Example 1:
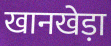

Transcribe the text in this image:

खानखेड़ा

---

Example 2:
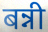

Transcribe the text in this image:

बन्नी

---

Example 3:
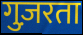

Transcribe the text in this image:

गुज़रता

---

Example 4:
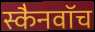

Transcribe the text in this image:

स्कैनवॉच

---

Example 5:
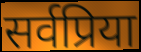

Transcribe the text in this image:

सर्वप्रिया